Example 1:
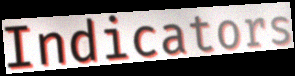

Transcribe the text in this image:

Indicators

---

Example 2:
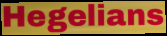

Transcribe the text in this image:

Hegelians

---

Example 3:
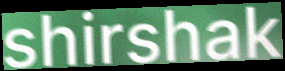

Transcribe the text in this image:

shirshak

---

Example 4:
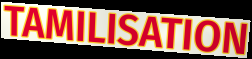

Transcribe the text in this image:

TAMILISATION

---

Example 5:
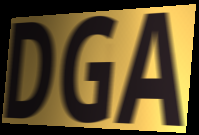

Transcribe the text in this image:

DGA